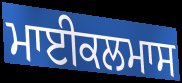
ਮਾਈਕਲਮਾਸ